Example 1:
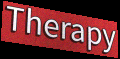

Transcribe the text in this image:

Therapy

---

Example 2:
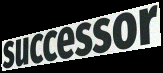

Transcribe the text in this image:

successor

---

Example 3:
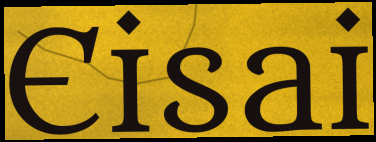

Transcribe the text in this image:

Eisai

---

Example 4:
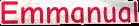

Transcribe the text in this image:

Emmanual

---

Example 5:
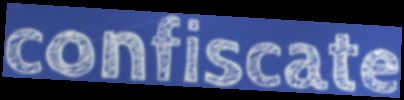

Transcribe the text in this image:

confiscate